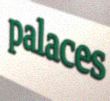
palaces